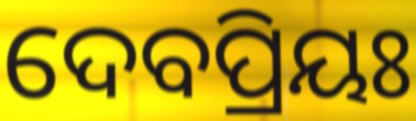
ଦେବପ୍ରିୟଃ